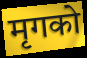
मृगको